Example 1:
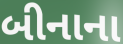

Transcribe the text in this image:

બીનાના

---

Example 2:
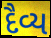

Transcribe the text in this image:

દૈવ્ય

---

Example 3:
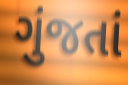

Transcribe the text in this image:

ગુંજતાં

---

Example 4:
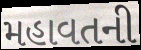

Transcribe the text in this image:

મહાવતની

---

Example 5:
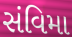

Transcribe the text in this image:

સંવિમા